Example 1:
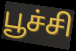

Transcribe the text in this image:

பூச்சி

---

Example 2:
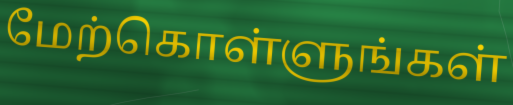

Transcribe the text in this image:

மேற்கொள்ளுங்கள்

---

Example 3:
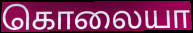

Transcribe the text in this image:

கொலையா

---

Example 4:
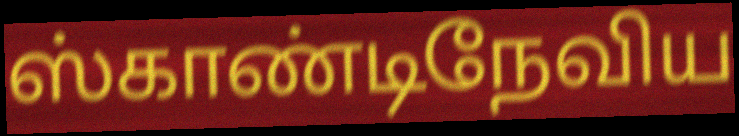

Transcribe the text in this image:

ஸ்காண்டிநேவிய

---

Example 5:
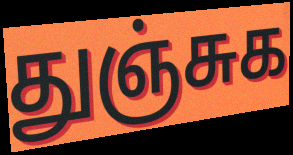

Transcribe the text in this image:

துஞ்சுக